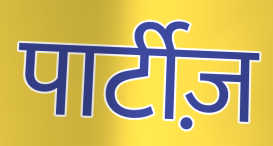
पार्टीज़